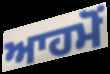
ਆਹਮੋਂ